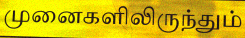
முனைகளிலிருந்தும்